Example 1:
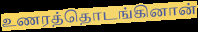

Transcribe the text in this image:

உணரத்தொடங்கினான்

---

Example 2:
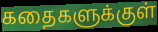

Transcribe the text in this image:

கதைகளுக்குள்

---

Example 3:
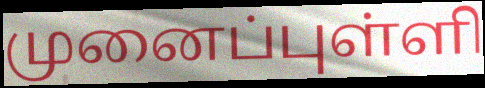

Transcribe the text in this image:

முனைப்புள்ளி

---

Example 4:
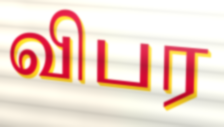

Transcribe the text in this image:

விபர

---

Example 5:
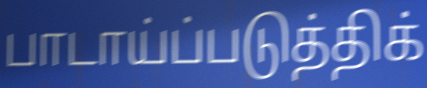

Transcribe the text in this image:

பாடாய்ப்படுத்திக்